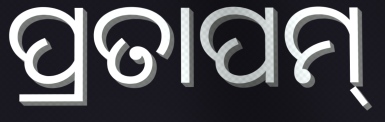
ପ୍ରତାପମ୍